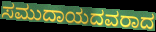
ಸಮುದಾಯದವರಾದ